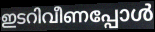
ഇടറിവീണപ്പോൾ